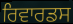
ਰਿਵਾਰਡਸ